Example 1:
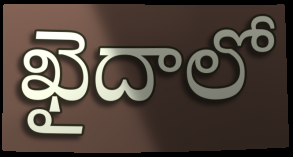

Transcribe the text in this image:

ఖైదాలో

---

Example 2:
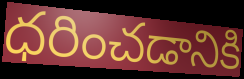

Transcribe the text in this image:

ధరించడానికి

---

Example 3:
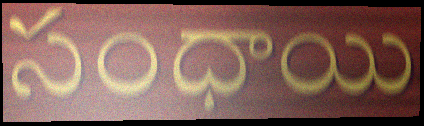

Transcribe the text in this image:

సంధాయి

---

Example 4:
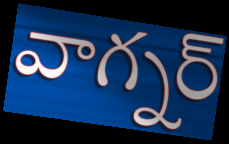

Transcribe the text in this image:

వాగ్నర్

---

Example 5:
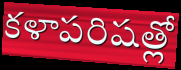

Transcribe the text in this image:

కళాపరిషత్లో